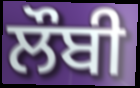
ਲੌਬੀ